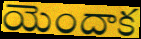
యెందాక